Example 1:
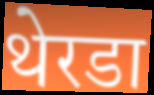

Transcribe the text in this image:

थेरडा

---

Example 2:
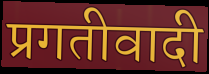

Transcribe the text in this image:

प्रगतीवादी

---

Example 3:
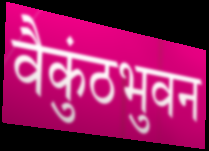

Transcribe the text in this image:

वैकुंठभुवन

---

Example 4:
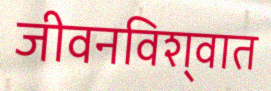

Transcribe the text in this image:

जीवनविश्वात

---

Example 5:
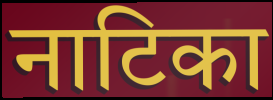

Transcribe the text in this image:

नाटिका